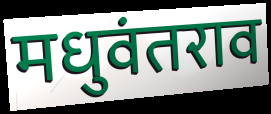
मधुवंतराव